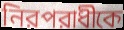
নিরপরাধীকে